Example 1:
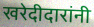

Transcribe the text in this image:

खरेदीदारांनी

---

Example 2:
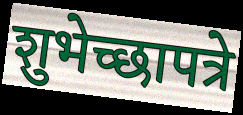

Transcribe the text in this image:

शुभेच्छापत्रे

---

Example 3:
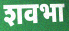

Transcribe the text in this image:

शवभा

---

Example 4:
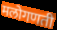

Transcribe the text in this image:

मलोगणती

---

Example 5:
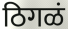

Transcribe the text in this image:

ठिगळं